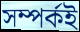
সম্পৰ্কই